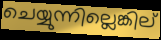
ചെയ്യുന്നില്ലെങ്കില്